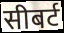
सीबर्ट